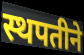
स्थपतीने